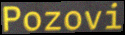
Pozovi